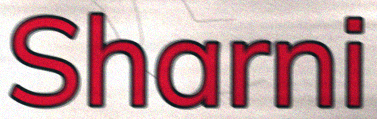
Sharni